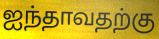
ஐந்தாவதற்கு